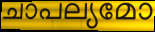
ചാപല്യമോ